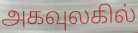
அகவுலகில்